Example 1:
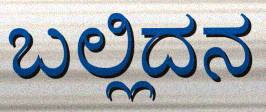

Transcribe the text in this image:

ಬಲ್ಲಿದನ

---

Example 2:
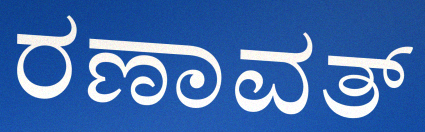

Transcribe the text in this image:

ರಣಾವತ್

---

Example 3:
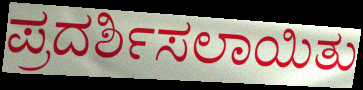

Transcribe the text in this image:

ಪ್ರದರ್ಶಿಸಲಾಯಿತು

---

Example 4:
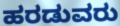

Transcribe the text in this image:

ಹರಡುವರು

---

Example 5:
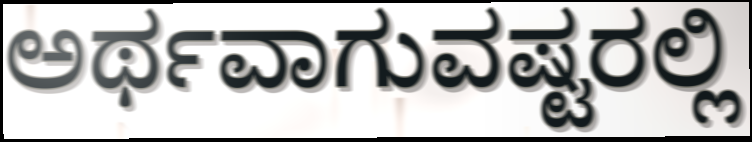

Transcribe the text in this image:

ಅರ್ಥವಾಗುವಷ್ಟರಲ್ಲಿ